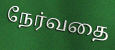
நேர்வதை